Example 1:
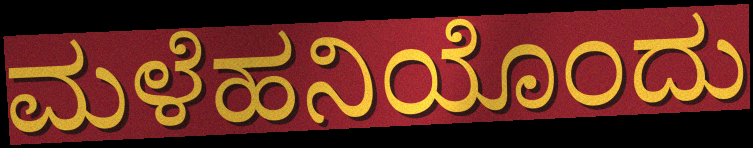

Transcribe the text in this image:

ಮಳೆಹನಿಯೊಂದು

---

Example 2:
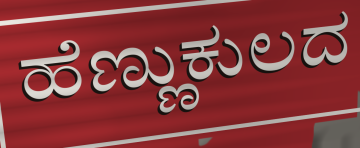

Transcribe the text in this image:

ಹೆಣ್ಣುಕುಲದ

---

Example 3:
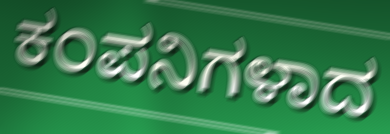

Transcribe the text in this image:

ಕಂಪನಿಗಳಾದ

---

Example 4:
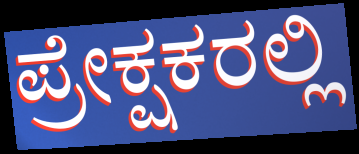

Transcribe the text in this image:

ಪ್ರೇಕ್ಷಕರಲ್ಲಿ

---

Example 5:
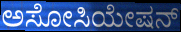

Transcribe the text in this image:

ಅಸೋಸಿಯೇಷನ್